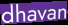
dhavan